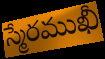
స్మేరముఖీ